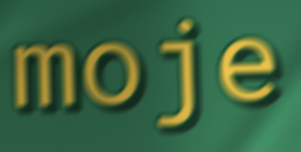
moje